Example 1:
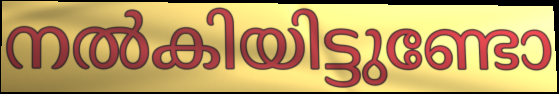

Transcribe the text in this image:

നൽകിയിട്ടുണ്ടോ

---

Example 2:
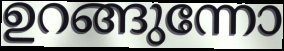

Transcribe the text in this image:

ഉറങ്ങുന്നോ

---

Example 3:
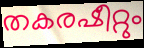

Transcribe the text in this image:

തകരഷീറ്റും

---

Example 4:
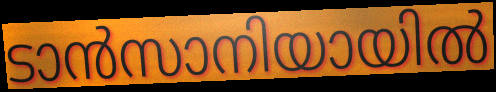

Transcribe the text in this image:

ടാൻസാനിയായിൽ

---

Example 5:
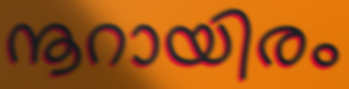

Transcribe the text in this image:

നൂറായിരം